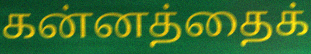
கன்னத்தைக்